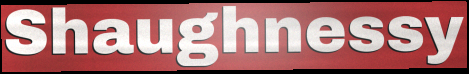
Shaughnessy